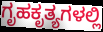
ಗೃಹಕೃತ್ಯಗಳಲ್ಲಿ